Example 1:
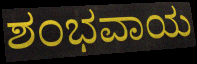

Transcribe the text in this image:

ಶಂಭವಾಯ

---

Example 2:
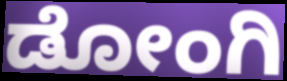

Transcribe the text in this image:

ಡೋಂಗಿ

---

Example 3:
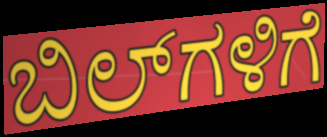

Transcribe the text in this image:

ಬಿಲ್‌ಗಳಿಗೆ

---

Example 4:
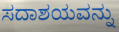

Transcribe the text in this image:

ಸದಾಶಯವನ್ನು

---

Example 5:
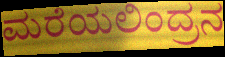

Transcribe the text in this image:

ಮರೆಯಲಿಂದ್ರನ